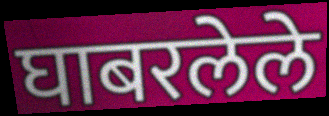
घाबरलेले